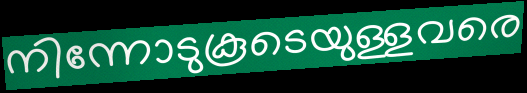
നിന്നോടുകൂടെയുള്ളവരെ